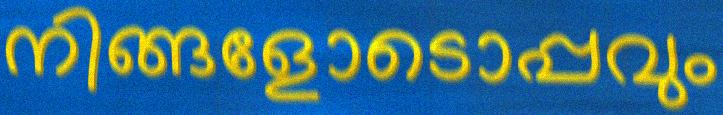
നിങ്ങളോടൊപ്പവും